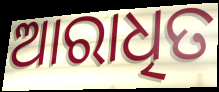
ଆରାଧିତ